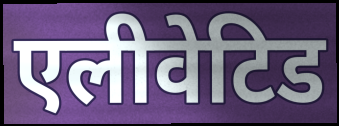
एलीवेटिड